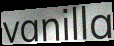
vanilla